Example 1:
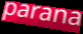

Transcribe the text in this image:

parana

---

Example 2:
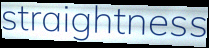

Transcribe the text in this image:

straightness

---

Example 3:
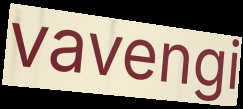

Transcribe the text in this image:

vavengi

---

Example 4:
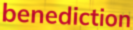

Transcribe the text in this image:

benediction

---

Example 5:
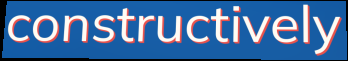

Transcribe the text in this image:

constructively